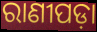
ରାଣୀପଡ଼ା